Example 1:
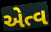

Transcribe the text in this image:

એત્વ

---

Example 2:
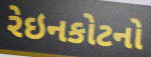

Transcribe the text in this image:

રેઇનકોટનો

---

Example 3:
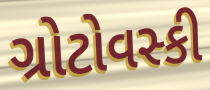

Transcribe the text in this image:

ગ્રોટોવસ્કી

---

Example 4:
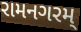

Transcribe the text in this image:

રામનગરમ્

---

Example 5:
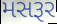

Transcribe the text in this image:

મસરૂર